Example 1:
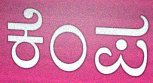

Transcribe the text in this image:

ಕೆಂಪ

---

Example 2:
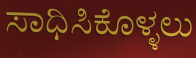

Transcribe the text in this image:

ಸಾಧಿಸಿಕೊಳ್ಳಲು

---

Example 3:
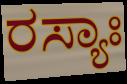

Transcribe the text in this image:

ರಸ್ಯಾಃ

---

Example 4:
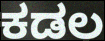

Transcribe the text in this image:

ಕಡಲ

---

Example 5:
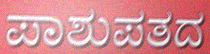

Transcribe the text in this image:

ಪಾಶುಪತದ